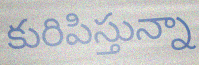
కురిపిస్తున్నా